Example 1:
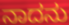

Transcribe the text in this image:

ನಾದನು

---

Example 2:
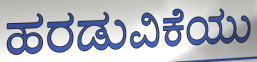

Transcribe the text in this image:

ಹರಡುವಿಕೆಯು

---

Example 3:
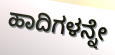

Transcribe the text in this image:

ಹಾದಿಗಳನ್ನೇ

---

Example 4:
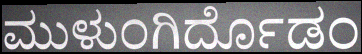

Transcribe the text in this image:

ಮುಳುಂಗಿರ್ದೊಡಂ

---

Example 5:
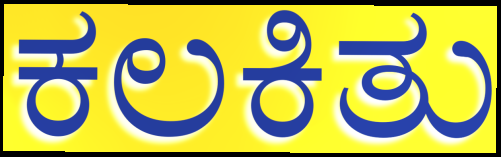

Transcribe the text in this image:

ಕಲಕಿತು